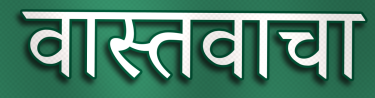
वास्तवाचा